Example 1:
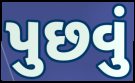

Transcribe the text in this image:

પુછવું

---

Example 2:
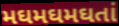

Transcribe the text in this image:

મઘમઘમઘતાં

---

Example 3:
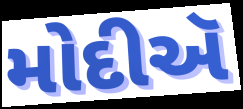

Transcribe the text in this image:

મોદીઍ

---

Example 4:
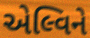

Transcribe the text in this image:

એલ્વિને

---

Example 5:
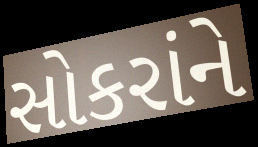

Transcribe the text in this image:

સોકરાંને